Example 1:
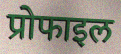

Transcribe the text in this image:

प्रोफाइल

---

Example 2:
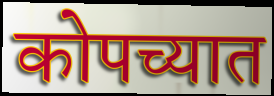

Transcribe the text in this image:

कोपच्यात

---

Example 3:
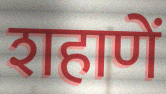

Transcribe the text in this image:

शहाणें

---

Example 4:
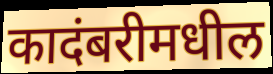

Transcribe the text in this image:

कादंबरीमधील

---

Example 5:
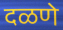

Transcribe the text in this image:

दळणे